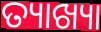
ତ୍ୟାଖ୍ୟା